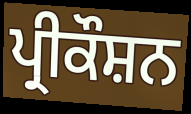
ਪ੍ਰੀਕੌਸ਼ਨ